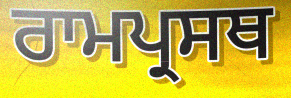
ਰਾਮਪ੍ਰਸਥ